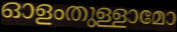
ഓളംതുള്ളാമോ